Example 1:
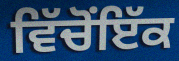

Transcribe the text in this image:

ਵਿੱਚੋਂਇੱਕ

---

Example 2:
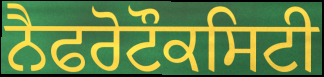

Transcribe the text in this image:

ਨੈਫਰੋਟੌਕਸਿਟੀ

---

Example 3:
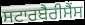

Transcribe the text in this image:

ਸਟਾਰਬੈਰੀਸੈਂਸ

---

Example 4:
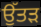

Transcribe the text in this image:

ਉੱਤੜ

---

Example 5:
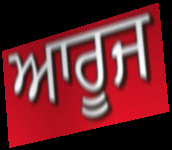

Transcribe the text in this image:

ਆਰੂਜ